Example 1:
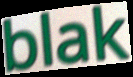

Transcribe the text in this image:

blak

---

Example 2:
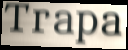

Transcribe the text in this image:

Trapa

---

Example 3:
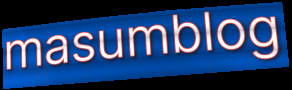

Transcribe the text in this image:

masumblog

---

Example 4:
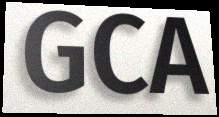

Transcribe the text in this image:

GCA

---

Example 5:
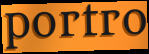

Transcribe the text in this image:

portro